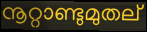
നൂറ്റാണ്ടുമുതല്